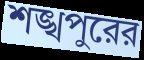
শঙ্খপুরের